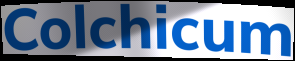
Colchicum